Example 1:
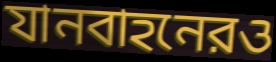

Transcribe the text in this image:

যানবাহনেরও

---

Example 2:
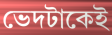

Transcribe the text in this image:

ভেদটাকেই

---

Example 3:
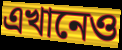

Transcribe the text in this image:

এখানেও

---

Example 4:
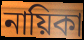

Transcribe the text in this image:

নায়িকা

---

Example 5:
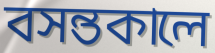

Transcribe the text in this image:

বসন্তকালে